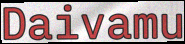
Daivamu